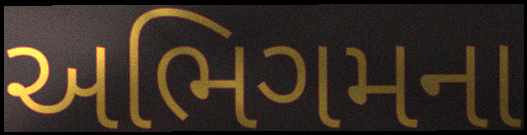
અભિગમના